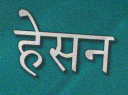
हेसन